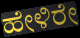
ಹೇಳಿರೇ